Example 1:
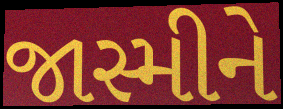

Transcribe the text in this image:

જાસ્મીને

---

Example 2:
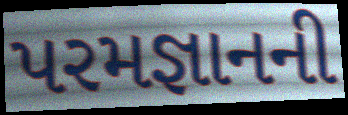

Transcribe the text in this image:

પરમજ્ઞાનની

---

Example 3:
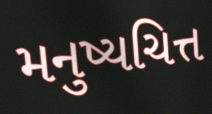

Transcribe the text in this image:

મનુષ્યચિત્ત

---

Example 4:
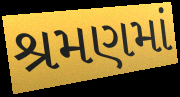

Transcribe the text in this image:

શ્રમણમાં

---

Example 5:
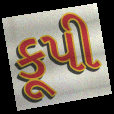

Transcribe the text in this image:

કૂપી